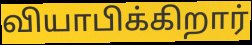
வியாபிக்கிறார்